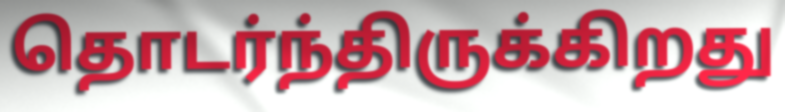
தொடர்ந்திருக்கிறது